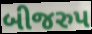
બીજરુપ